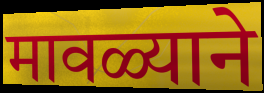
मावळ्याने